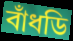
বাঁধডি